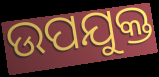
ଉପଯୁକ୍ତ